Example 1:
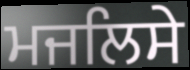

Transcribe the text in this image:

ਮਜਲਿਸੇ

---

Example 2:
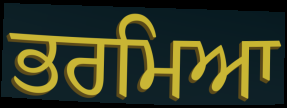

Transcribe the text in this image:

ਭਰਮਿਆ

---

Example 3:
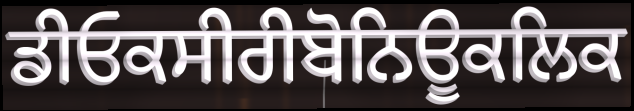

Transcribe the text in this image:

ਡੀਓਕਸੀਰੀਬੋਨਿਊਕਲਿਕ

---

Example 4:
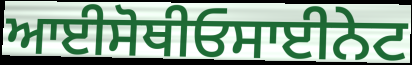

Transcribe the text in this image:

ਆਈਸੋਥੀਓਸਾਈਨੇਟ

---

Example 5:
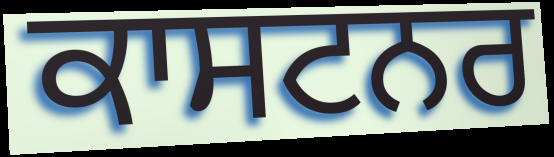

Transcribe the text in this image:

ਕਾਸਟਨਰ